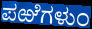
ಪಱೆಗಳುಂ